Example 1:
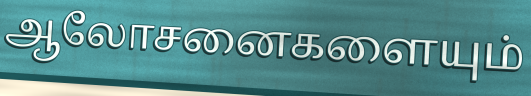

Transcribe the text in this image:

ஆலோசனைகளையும்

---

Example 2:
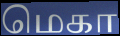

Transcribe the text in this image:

மெகா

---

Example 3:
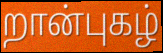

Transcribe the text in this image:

றான்புகழ்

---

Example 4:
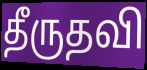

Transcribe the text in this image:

தீருதவி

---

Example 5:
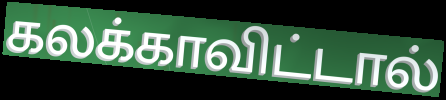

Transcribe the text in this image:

கலக்காவிட்டால்